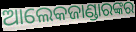
ଆଲେକଜାଣ୍ଡାରଙ୍କର